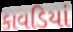
કાવડિયાં